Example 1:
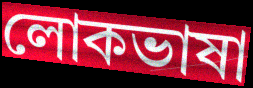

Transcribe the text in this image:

লোকভাষা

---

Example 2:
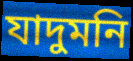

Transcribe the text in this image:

যাদুমনি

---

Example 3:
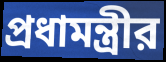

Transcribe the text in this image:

প্রধামন্ত্রীর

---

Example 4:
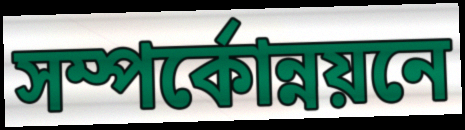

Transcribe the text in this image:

সম্পর্কোন্নয়নে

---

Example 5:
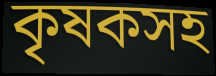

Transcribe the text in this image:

কৃষকসহ